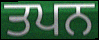
ਤਪਨ